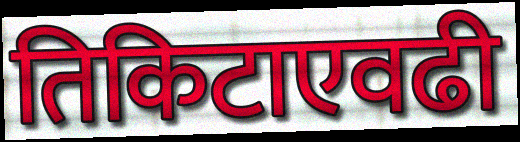
तिकिटाएवढी